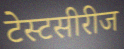
टेस्टसीरीज